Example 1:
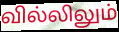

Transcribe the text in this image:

வில்லிலும்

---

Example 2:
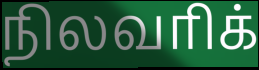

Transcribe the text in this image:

நிலவரிக்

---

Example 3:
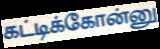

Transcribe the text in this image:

கட்டிக்கோன்னு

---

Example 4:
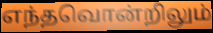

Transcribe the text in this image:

எந்தவொன்றிலும்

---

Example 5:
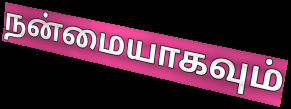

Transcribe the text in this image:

நன்மையாகவும்